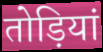
तोड़ियां